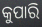
କୁପାରି